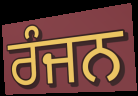
ਰੰਜਨ